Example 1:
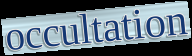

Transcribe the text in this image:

occultation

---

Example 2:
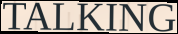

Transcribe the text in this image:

TALKING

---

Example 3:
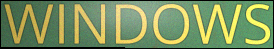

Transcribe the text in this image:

WINDOWS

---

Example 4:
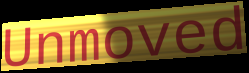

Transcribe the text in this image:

Unmoved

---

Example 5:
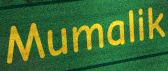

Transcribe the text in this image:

Mumalik